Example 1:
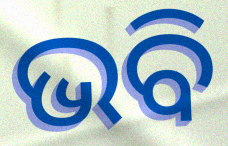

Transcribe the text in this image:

ଭବି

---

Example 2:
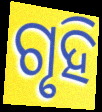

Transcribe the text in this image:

ଗୃହି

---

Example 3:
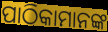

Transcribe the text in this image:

ପାଠିକାମାନଙ୍କ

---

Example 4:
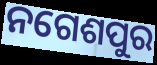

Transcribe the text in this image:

ନଗେଶପୁର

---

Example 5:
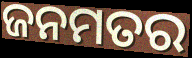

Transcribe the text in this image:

ଜନମତର